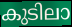
കുടിലാ